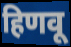
हिणवू